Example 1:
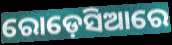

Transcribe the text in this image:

ରୋଡ଼େସିଆରେ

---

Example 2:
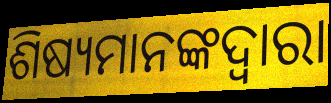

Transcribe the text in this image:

ଶିଷ୍ୟମାନଙ୍କଦ୍ୱାରା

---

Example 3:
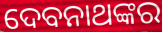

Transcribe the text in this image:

ଦେବନାଥଙ୍କର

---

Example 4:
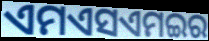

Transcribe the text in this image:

ଏମଏସଏମଇର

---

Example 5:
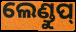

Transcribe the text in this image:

ଲେଣ୍ଡୁପ୍